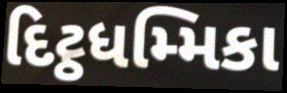
દિટ્ઠધમ્મિકા